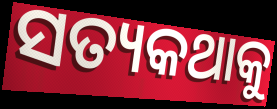
ସତ୍ୟକଥାକୁ